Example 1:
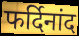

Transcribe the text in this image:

फर्दिनांद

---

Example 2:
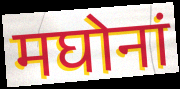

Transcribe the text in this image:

मघोनां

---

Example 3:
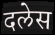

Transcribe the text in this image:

दलेस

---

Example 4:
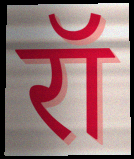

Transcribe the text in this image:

रॉ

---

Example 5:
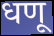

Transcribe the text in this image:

धणू